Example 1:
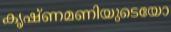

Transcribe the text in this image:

കൃഷ്ണമണിയുടെയോ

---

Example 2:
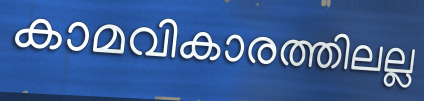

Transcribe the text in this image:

കാമവികാരത്തിലല്ല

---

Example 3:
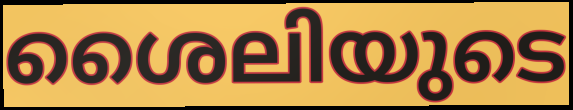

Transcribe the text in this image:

ശൈലിയുടെ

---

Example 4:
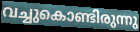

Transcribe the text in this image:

വച്ചുകൊണ്ടിരുന്നു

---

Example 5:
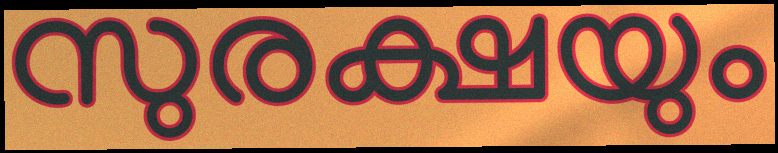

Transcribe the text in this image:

സുരക്ഷയും